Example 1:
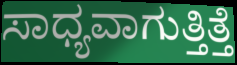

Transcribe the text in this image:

ಸಾಧ್ಯವಾಗುತ್ತಿತ್ತೆ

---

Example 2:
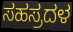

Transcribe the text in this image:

ಸಹಸ್ರದಳ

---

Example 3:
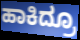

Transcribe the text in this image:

ಹಾಕಿದ್ರೂ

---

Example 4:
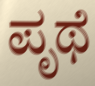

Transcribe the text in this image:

ಪೃಥೆ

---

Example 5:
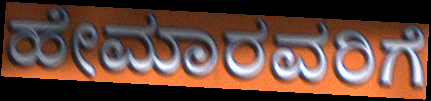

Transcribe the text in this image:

ಹೇಮಾರವರಿಗೆ